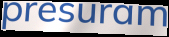
presuram